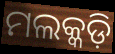
ମଲକ୍କଡ଼ି